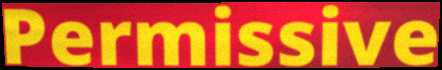
Permissive